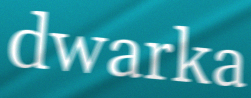
dwarka